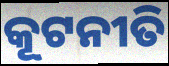
କୂଟନୀତି